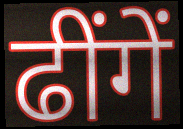
ढींगें